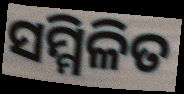
ସମ୍ମିଳିତ